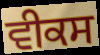
ਵੀਕਸ